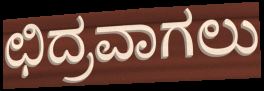
ಛಿದ್ರವಾಗಲು